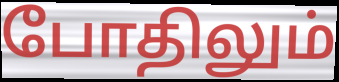
போதிலும்